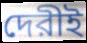
দেরীই